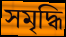
সমৃদ্ধি